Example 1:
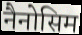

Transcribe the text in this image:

नैनोसिम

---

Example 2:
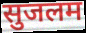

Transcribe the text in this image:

सुजलम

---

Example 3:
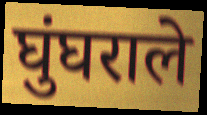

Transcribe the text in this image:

घुंघराले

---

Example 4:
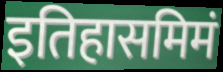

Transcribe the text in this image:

इतिहासमिमं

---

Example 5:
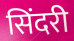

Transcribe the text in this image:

सिंदरी